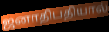
ஜனாதிபதியால்